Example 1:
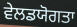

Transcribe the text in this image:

ਵੇਲਡਯੋਗਤਾ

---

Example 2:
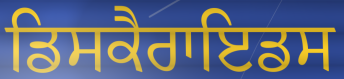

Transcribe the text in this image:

ਡਿਸਕੈਰਾਇਡਸ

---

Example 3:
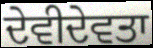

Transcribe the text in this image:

ਦੇਵੀਦੇਵਤਾ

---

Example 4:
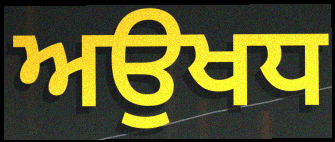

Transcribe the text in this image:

ਅਉਖਧ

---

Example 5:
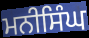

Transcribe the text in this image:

ਮਨੀਸਿੰਘ